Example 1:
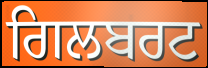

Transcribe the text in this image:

ਗਿਲਬਰਟ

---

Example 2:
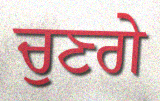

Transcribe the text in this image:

ਚੁਣਗੇ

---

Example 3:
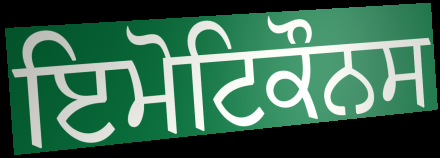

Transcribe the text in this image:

ਇਮੋਟਿਕੌਨਸ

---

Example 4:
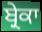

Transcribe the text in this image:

ਬ੍ਰੇਕਾ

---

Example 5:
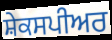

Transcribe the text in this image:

ਸ਼ੇਕਸਪੀਅਰ